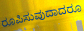
ರೂಪಿಸುವುದಾದರೂ